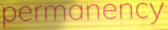
permanency